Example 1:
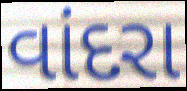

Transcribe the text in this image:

વાંદરા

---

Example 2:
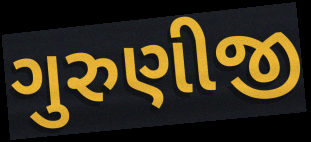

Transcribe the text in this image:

ગુરુણીજી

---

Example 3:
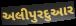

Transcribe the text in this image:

અલીપુરદુઆર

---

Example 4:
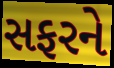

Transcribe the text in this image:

સફરને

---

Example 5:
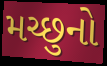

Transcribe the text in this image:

મચ્છુનો